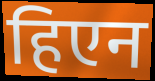
हिएन